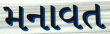
મનાવત